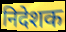
निदेशक